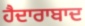
ਹੈਦਾਰਾਬਾਦ